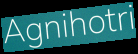
Agnihotri